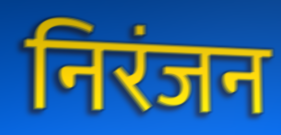
निरंजन